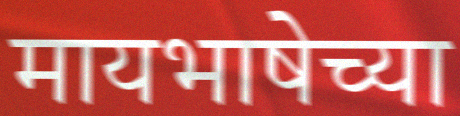
मायभाषेच्या